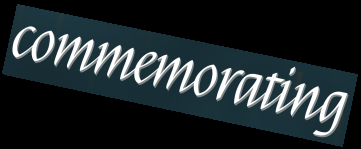
commemorating